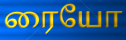
ரையோ